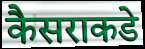
कैसराकडे